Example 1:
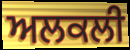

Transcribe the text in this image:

ਅਲਕਲੀ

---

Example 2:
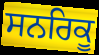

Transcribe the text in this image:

ਸਨਰਿਕੂ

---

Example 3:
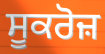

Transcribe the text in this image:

ਸੂਕਰੋਜ਼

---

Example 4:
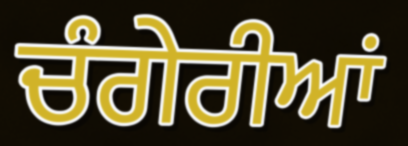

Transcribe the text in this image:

ਚੰਗੇਰੀਆਂ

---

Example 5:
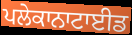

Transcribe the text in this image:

ਪਲੇਕਾਨਾਟਾਈਡ